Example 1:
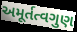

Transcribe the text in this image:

અમૂર્તત્વગુણ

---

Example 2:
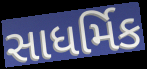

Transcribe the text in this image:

સાધર્મિક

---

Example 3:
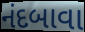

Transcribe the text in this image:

નંદબાવા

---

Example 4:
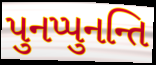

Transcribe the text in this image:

પુનપ્પુનન્તિ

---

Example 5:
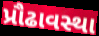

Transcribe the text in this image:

પ્રૌઢાવસ્થા